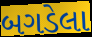
બગડેલા